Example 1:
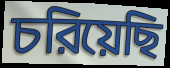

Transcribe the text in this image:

চরিয়েছি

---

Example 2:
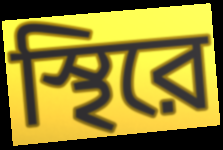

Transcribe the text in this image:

স্থিরে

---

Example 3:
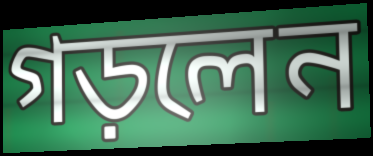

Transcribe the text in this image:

গড়লেন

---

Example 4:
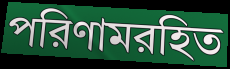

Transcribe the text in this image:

পরিণামরহিত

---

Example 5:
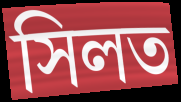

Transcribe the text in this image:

সিলত